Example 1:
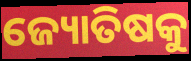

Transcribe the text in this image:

ଜ୍ୟୋତିଷକୁ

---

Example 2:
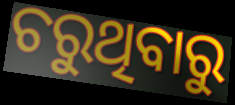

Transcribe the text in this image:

ଚରୁଥିବାରୁ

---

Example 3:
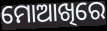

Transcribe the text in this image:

ମୋଆଖିରେ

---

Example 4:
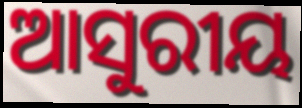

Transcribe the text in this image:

ଆସୁରୀୟ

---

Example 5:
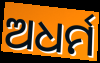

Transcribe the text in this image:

ଅଧର୍ମ